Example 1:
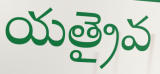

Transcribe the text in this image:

యత్రైవ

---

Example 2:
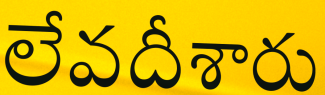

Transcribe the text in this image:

లేవదీశారు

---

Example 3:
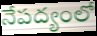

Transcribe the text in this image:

నేపద్యంలో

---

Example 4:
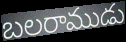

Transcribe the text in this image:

బలరాముడు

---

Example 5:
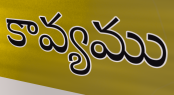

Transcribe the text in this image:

కావ్యము